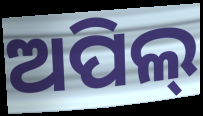
ଅପିଲ୍